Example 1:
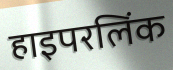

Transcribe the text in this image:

हाइपरलिंक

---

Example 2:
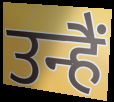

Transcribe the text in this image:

उन्‍हैं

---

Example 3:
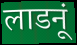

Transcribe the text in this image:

लाडनूं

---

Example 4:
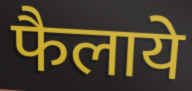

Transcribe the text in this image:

फैलाये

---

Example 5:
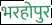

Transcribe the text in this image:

भरहोपुर